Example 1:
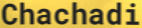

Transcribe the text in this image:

Chachadi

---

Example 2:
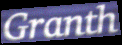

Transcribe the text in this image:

Granth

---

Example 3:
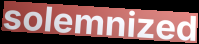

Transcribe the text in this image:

solemnized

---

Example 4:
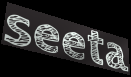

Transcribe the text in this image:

seeta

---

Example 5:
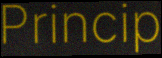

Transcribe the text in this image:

Princip